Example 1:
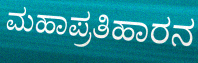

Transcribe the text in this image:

ಮಹಾಪ್ರತಿಹಾರನ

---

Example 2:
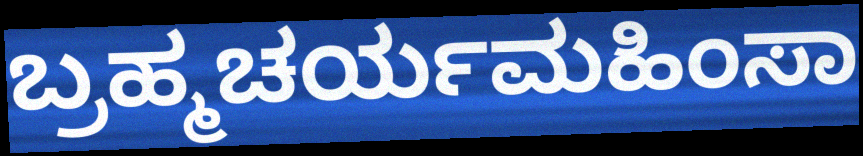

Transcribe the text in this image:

ಬ್ರಹ್ಮಚರ್ಯಮಹಿಂಸಾ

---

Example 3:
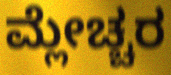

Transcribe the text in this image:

ಮ್ಲೇಚ್ಚರ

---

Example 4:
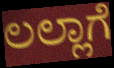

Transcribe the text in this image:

ಲಲ್ಲಾಗೆ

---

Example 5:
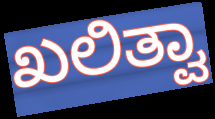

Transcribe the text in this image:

ಖಲಿತ್ವಾ